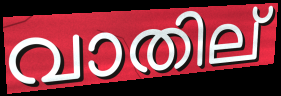
വാതില്